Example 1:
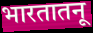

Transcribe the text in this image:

भारतातनू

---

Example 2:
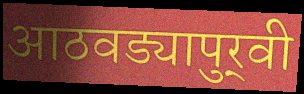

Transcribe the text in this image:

आठवड्यापुर्वी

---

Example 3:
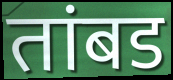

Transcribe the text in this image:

तांबड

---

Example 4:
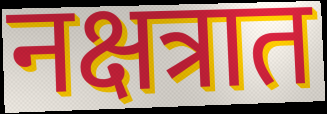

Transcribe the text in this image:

नक्षत्रात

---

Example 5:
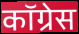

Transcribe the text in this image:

कॉग्रेस